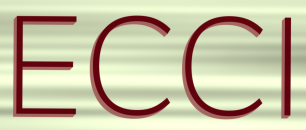
ECCI